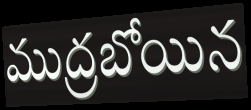
ముద్రబోయిన